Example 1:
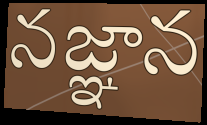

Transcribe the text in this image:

నజ్ఞాన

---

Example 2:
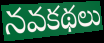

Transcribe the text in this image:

నవకథలు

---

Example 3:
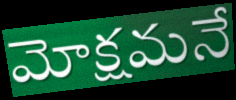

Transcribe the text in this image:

మోక్షమనే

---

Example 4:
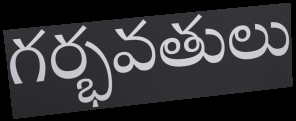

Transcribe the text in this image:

గర్భవతులు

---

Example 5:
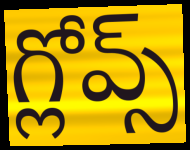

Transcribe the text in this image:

గ్లోవ్స్